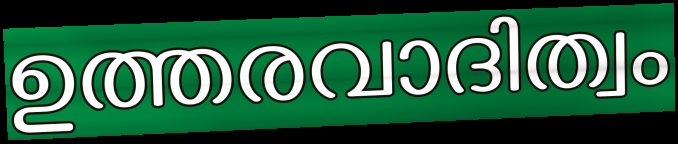
ഉത്തരവാദിത്വം